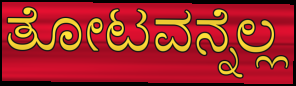
ತೋಟವನ್ನೆಲ್ಲ